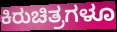
ಕಿರುಚಿತ್ರಗಳೂ